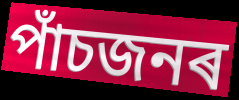
পাঁচজনৰ